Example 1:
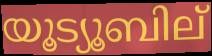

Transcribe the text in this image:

യൂട്യൂബില്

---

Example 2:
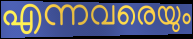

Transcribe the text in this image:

എന്നവരെയും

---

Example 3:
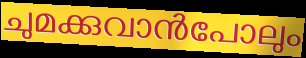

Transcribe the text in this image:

ചുമക്കുവാൻപോലും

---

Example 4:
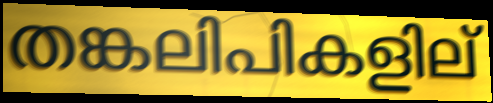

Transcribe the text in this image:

തങ്കലിപികളില്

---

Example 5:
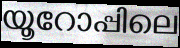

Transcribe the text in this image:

യൂറോപ്പിലെ